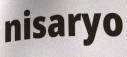
nisaryo